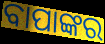
ବାପାଙ୍କର